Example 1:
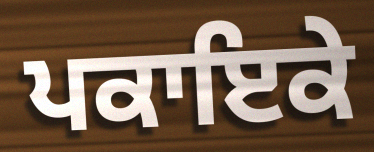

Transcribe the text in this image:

ਪਕਾਇਕੇ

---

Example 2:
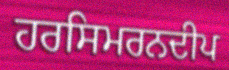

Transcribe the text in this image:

ਹਰਸਿਮਰਨਦੀਪ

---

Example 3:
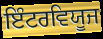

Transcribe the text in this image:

ਇੰਟਰਵਿਯੂਜ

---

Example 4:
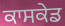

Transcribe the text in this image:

ਕਾਸਕੇਡ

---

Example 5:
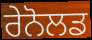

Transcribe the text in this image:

ਰੇਨੋਲਡ